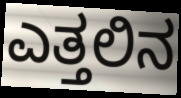
ಎತ್ತಲಿನ